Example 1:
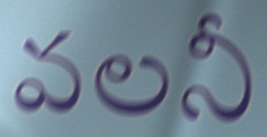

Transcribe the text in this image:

వలనీ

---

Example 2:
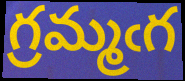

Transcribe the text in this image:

గ్రమ్మఁగ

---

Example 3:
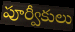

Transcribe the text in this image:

పూర్వీకులు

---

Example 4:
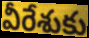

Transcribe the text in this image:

వీరేశుకు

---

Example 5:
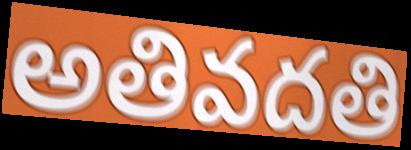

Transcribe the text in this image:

అతివదతి